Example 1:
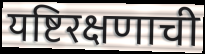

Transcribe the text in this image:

यष्टिरक्षणाची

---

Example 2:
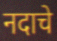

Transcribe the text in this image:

नदाचे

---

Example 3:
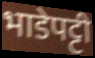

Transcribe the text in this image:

भाडेपट्टी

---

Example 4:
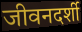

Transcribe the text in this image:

जीवनदर्शी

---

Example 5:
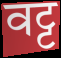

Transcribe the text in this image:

वट्ट